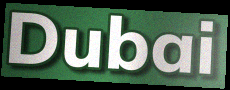
Dubai